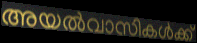
അയൽവാസികൾക്ക്